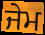
ਜੇਮ